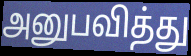
அனுபவித்து